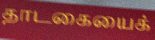
தாடகையைக்